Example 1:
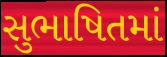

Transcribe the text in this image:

સુભાષિતમાં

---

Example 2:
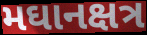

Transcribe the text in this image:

મઘાનક્ષત્ર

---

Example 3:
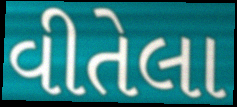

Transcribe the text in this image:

વીતેલા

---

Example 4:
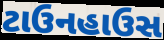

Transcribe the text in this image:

ટાઉનહાઉસ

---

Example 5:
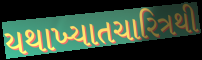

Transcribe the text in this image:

યથાખ્યાતચારિત્રથી